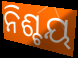
ନିଶ୍ଚୟ